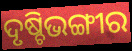
ଦୃଷ୍ଚିଭଙ୍ଗୀର